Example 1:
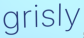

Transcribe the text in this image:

grisly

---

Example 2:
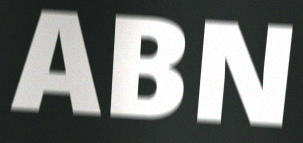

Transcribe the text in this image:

ABN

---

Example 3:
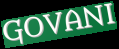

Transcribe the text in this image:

GOVANI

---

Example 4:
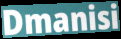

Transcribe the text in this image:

Dmanisi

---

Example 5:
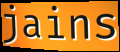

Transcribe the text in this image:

jains